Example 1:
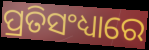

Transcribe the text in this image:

ପ୍ରତିସଂଧ୍ୟାରେ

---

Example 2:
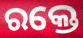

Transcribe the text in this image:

ରକ୍ତେ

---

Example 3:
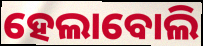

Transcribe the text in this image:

ହେଲାବୋଲି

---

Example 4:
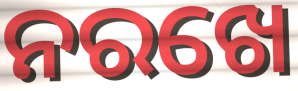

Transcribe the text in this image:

ନରଖେ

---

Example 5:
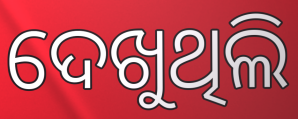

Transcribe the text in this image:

ଦେଖୁଥିଲି